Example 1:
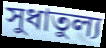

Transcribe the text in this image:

সুধাতুল্য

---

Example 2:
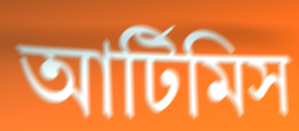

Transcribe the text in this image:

আর্টিমিস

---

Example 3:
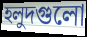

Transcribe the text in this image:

হলুদগুলো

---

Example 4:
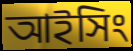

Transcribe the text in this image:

আইসিং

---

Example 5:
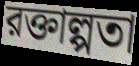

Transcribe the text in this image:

রক্তাল্পতা